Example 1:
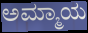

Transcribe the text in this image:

ಅಮ್ಮಾಯ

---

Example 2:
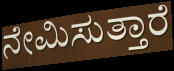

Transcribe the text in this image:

ನೇಮಿಸುತ್ತಾರೆ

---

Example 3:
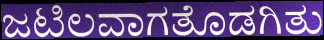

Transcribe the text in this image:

ಜಟಿಲವಾಗತೊಡಗಿತು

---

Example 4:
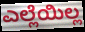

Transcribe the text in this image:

ಎಲ್ಲೆಯಿಲ್ಲ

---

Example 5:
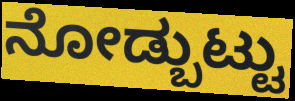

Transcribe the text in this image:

ನೋಡ್ಬುಟ್ಟು